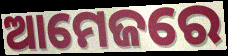
ଆମେଜରେ